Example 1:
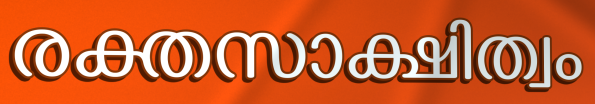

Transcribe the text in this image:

രക്തസാക്ഷിത്വം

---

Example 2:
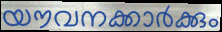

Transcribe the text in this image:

യൗവനക്കാർക്കും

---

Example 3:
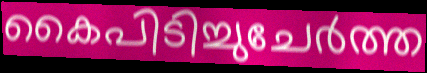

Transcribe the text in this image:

കൈപിടിച്ചുചേർത്ത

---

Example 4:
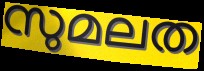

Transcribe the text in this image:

സുമലത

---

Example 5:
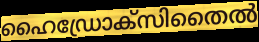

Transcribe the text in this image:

ഹൈഡ്രോക്സിതൈൽ